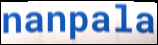
nanpala